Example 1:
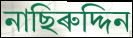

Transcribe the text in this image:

নাছিৰুদ্দিন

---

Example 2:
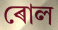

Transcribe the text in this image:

ৰোল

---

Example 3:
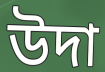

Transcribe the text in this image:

উদা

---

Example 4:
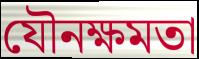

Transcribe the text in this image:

যৌনক্ষমতা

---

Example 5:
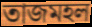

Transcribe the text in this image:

তাজমহল